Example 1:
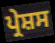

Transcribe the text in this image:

ਪ੍ਰੇਸ਼ਸ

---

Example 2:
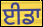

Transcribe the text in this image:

ਈਡਾ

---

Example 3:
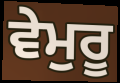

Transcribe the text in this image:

ਵੇਮੁਰੂ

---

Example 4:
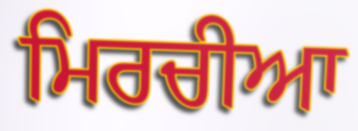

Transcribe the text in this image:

ਮਿਰਚੀਆ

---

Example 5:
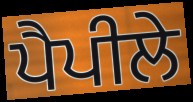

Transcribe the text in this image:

ਪੈਪੀਲੇ